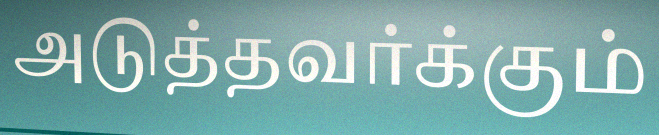
அடுத்தவர்க்கும்